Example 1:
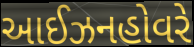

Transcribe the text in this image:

આઈઝનહોવરે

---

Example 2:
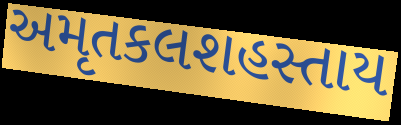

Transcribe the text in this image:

અમૃતકલશહસ્તાય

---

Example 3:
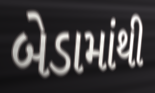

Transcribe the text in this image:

બેડામાંથી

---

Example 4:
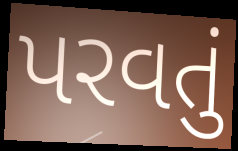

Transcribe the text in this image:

પરવતું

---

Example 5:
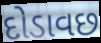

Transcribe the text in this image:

દોડાવછ